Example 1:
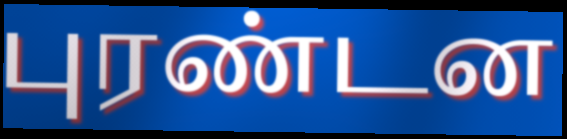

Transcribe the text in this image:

புரண்டன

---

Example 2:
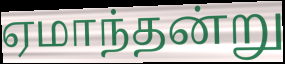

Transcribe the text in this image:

ஏமாந்தன்று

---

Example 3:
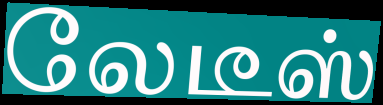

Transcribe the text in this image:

லேடீஸ்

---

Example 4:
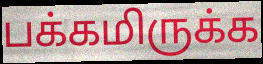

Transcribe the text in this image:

பக்கமிருக்க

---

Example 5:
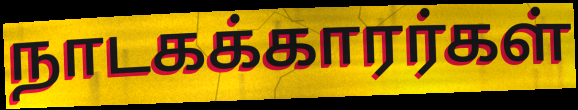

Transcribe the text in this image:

நாடகக்காரர்கள்